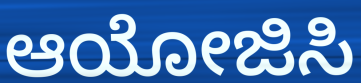
ಆಯೋಜಿಸಿ